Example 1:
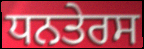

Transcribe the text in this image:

ਧਨਤੇਰਸ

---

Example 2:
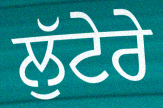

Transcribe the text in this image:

ਲੁੱਟੇਰੇ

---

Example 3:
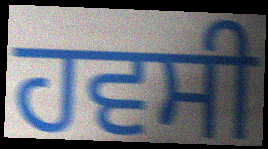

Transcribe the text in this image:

ਹਵਸੀ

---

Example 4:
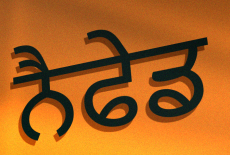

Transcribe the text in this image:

ਨੈਫੇਡ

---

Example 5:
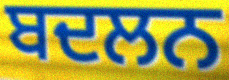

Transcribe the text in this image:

ਬਦਲਨ